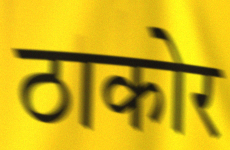
ठाकोर